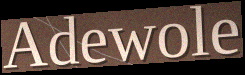
Adewole